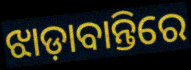
ଝାଡ଼ାବାନ୍ତିରେ